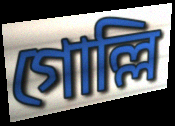
গোল্লি